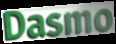
Dasmo